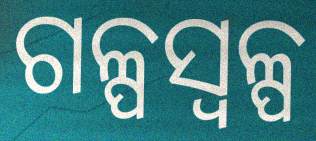
ଗଳ୍ପସ୍ୱଳ୍ପ